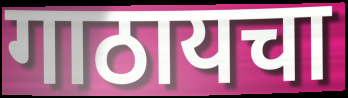
गाठायचा